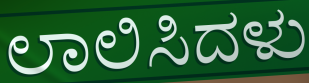
ಲಾಲಿಸಿದಳು